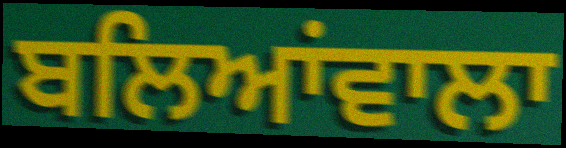
ਬਲਿਆਂਵਾਲਾ